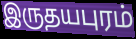
இருதயபுரம்